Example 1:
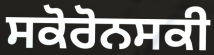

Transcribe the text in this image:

ਸਕੋਰੋਨਸਕੀ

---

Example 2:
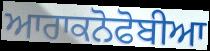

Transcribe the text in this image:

ਆਰਾਕਨੋਫੋਬੀਆ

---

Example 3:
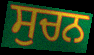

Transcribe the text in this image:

ਸੁਚਨ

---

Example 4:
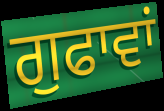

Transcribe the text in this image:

ਗੁਫਾਵਾਂ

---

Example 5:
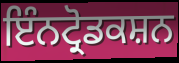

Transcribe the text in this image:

ਇੰਨਟ੍ਰੋਡਕਸ਼ਨ